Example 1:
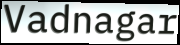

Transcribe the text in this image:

Vadnagar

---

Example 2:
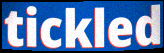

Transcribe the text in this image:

tickled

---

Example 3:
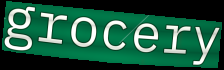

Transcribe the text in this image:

grocery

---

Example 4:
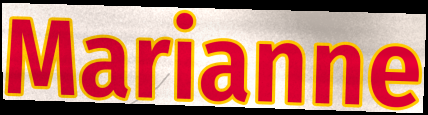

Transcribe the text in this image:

Marianne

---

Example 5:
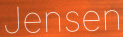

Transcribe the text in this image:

Jensen